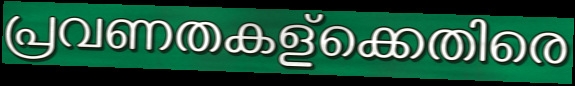
പ്രവണതകള്ക്കെതിരെ